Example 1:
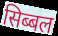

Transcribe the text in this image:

सिब्बल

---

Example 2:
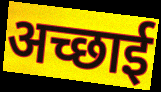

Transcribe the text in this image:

अच्छाई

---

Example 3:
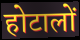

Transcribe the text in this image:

होटालों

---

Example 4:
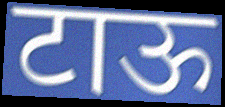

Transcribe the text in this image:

टाऊ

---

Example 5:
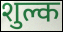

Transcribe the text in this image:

शुल्क